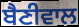
ਬੈਣੀਵਾਲ